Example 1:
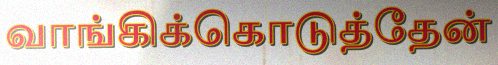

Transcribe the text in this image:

வாங்கிக்கொடுத்தேன்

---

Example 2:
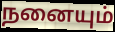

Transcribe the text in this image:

நனையும்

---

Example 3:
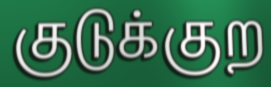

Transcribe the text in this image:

குடுக்குற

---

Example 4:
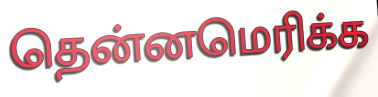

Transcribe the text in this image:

தென்னமெரிக்க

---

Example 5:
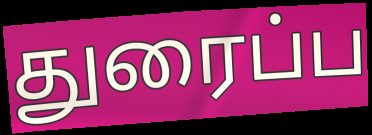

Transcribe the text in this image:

துரைப்ப